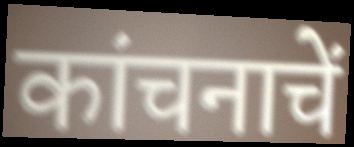
कांचनाचें